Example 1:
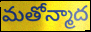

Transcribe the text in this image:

మతోన్మాద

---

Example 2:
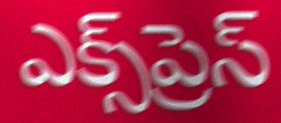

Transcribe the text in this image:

ఎక్స్‌ప్రెస్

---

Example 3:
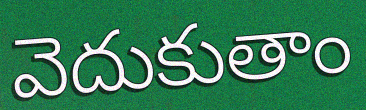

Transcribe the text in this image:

వెదుకుతాం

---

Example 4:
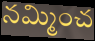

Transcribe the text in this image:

నమ్మించ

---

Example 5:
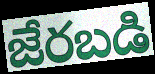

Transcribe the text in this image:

జేరబడి